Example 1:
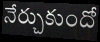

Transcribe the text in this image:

నేర్చుకుందో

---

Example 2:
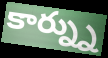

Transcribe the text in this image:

కార్న్ను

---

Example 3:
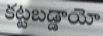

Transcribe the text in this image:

కట్టబడ్డాయో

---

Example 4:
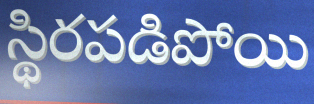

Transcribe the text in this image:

స్థిరపడిపోయి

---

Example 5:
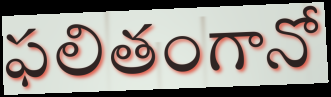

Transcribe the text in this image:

ఫలితంగానో